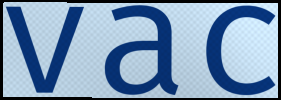
vac